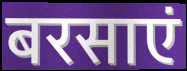
बरसाएं